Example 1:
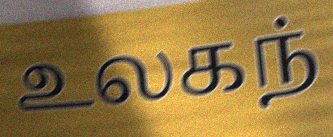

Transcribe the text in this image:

உலகந்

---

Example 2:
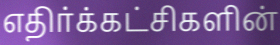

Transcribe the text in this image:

எதிர்க்கட்சிகளின்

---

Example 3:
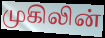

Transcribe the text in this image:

முகிலின்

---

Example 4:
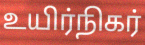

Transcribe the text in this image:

உயிர்நிகர்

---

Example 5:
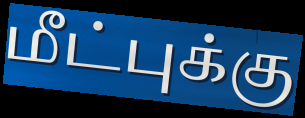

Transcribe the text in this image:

மீட்புக்கு